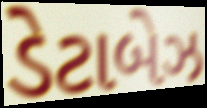
ડેટાબેઝ